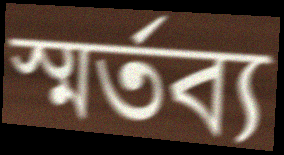
স্মর্তব্য